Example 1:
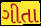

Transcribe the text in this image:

ગીતા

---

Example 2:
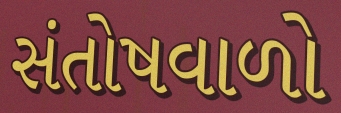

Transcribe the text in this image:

સંતોષવાળો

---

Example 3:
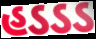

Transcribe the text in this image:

હડડડ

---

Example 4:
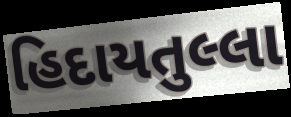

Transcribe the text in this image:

હિદાયતુલ્લા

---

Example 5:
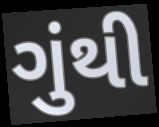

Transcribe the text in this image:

ગુંથી